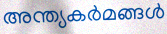
അന്ത്യകർമങ്ങൾ